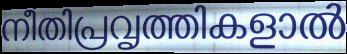
നീതിപ്രവൃത്തികളാൽ